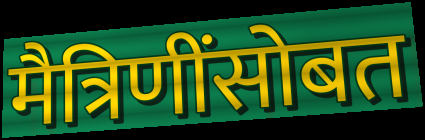
मैत्रिणींसोबत